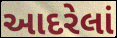
આદરેલાં